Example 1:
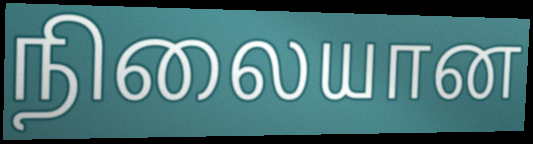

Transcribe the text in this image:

நிலையான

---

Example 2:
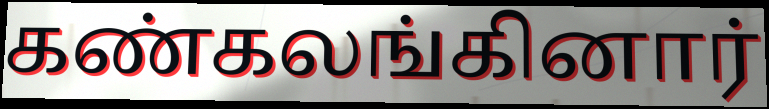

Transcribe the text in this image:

கண்கலங்கினார்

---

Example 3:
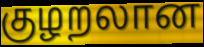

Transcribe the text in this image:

குழறலான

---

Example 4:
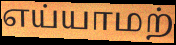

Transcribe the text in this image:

எய்யாமற்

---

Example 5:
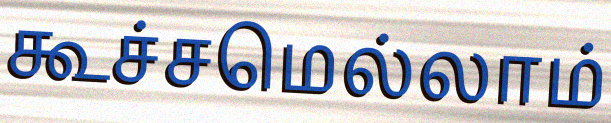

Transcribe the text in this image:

கூச்சமெல்லாம்